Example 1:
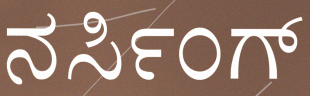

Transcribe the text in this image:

ನರ್ಸಿಂಗ್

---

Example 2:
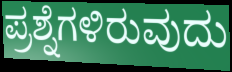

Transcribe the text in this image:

ಪ್ರಶ್ನೆಗಳಿರುವುದು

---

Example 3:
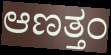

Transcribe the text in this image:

ಆಣತ್ತಂ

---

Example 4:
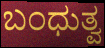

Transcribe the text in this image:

ಬಂಧುತ್ವ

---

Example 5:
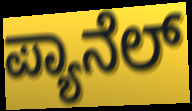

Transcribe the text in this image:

ಪ್ಯಾನೆಲ್